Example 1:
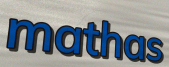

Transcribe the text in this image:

mathas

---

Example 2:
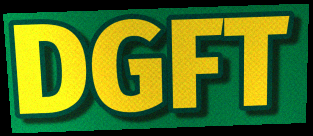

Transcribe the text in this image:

DGFT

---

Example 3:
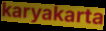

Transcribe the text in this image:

karyakarta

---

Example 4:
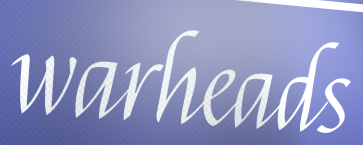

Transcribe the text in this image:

warheads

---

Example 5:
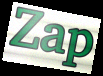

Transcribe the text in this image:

Zap